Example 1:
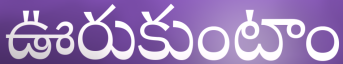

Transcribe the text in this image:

ఊరుకుంటాం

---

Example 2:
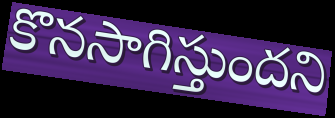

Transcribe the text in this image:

కొనసాగిస్తుందని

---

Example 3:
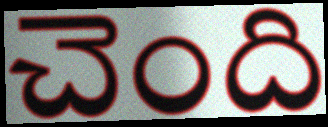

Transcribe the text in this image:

చెంది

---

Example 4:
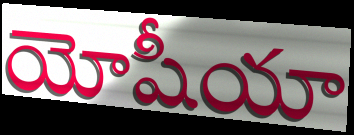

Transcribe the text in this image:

యోషీయా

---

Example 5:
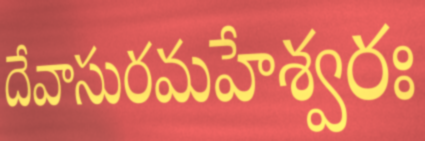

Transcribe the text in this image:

దేవాసురమహేశ్వరః